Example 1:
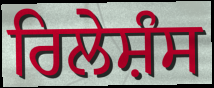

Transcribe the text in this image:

ਰਿਲੇਸ਼ੰਸ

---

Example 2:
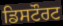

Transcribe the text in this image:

ਡਿਸਟੌਰਟ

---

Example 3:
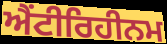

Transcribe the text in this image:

ਐਂਟੀਰਿਹੀਨਮ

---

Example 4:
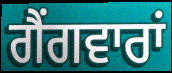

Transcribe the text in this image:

ਗੈਂਗਵਾਰਾਂ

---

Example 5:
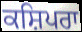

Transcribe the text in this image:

ਕਸ਼ਿਪਰਾ